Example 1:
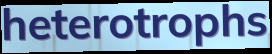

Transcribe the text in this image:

heterotrophs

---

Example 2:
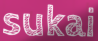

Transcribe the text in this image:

sukai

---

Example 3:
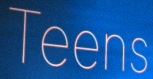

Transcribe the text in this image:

Teens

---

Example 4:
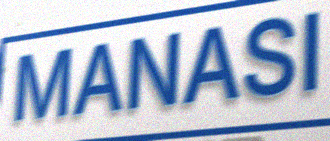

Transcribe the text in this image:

MANASI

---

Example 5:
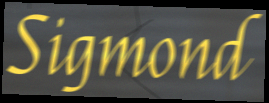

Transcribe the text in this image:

Sigmond